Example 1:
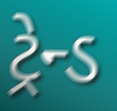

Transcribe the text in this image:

ટ્રેન્ડ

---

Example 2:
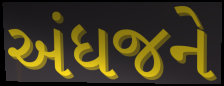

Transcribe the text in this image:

અંધજને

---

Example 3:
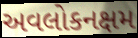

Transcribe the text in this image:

અવલોકનક્ષમ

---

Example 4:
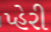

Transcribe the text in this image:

પ્હેરી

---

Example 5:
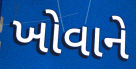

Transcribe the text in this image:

ખોવાને